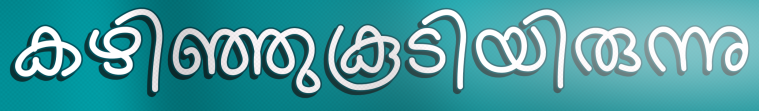
കഴിഞ്ഞുകൂടിയിരുന്നു